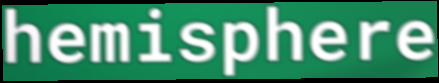
hemisphere